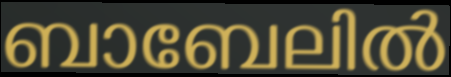
ബാബേലിൽ